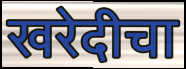
खरेदीचा